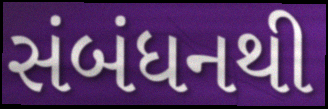
સંબંધનથી